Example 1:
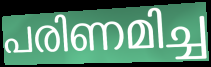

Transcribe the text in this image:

പരിണമിച്ച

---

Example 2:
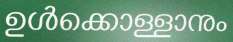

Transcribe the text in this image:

ഉൾക്കൊള്ളാനും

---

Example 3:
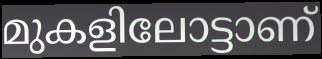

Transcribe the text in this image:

മുകളിലോട്ടാണ്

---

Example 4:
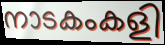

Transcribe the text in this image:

നാടകംകളി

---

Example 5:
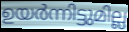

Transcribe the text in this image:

ഉയർന്നിട്ടുമില്ല